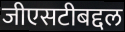
जीएसटीबद्दल